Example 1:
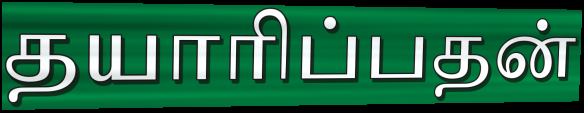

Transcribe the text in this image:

தயாரிப்பதன்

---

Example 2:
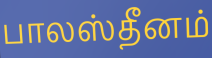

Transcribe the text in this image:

பாலஸ்தீனம்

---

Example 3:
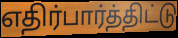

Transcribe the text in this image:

எதிர்பார்த்திட்டு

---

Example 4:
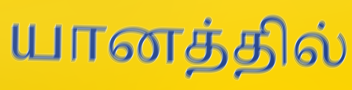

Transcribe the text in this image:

யானத்தில்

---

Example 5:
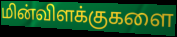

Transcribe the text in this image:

மின்விளக்குகளை